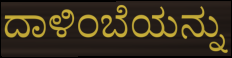
ದಾಳಿಂಬೆಯನ್ನು